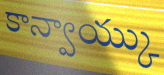
కాన్వాయ్కు